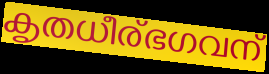
കൃതധീര്ഭഗവന്